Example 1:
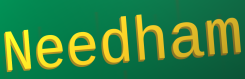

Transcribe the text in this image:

Needham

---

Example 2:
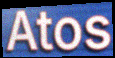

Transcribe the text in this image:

Atos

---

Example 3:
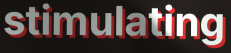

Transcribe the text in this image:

stimulating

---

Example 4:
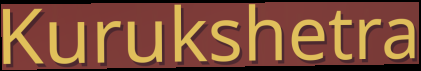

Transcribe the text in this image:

Kurukshetra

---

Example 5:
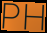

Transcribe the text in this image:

PH